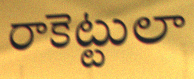
రాకెట్టులా